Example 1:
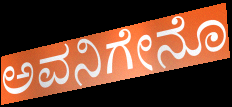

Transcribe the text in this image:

ಅವನಿಗೇನೊ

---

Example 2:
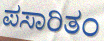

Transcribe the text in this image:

ಪಸಾರಿತಂ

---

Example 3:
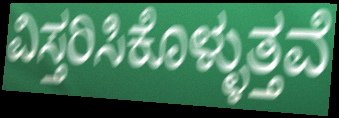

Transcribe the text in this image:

ವಿಸ್ತರಿಸಿಕೊಳ್ಳುತ್ತವೆ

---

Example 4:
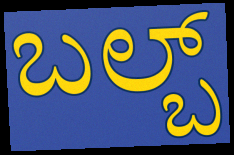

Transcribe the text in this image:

ಬಲ್ಬ್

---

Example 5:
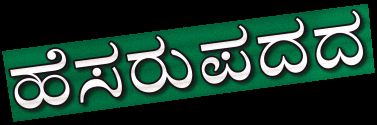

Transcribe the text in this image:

ಹೆಸರುಪದದ